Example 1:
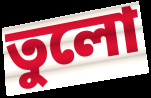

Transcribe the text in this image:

তুলো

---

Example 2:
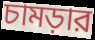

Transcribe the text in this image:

চামড়ার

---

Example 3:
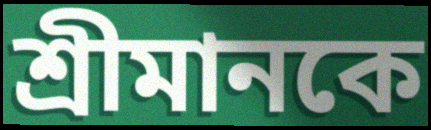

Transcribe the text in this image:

শ্রীমানকে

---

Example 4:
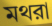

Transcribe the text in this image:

মথরা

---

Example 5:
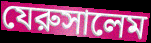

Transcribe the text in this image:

যেরুসালেম